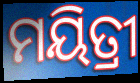
ମୟିତ୍ରୀ